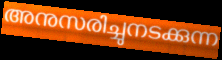
അനുസരിച്ചുനടക്കുന്ന